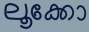
ലൂക്കോ